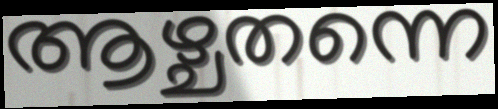
ആഴ്ചതന്നെ